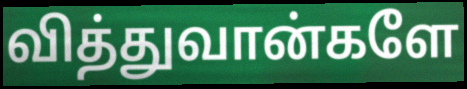
வித்துவான்களே